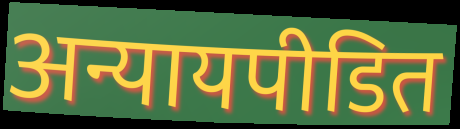
अन्यायपीडित